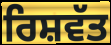
ਰਿਸ਼ਵੱਤ